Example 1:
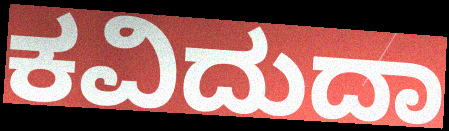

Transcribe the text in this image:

ಕವಿದುದಾ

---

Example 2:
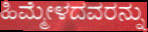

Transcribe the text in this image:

ಹಿಮ್ಮೇಳದವರನ್ನು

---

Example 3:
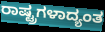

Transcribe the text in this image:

ರಾಷ್ಟ್ರಗಳಾದ್ಯಂತ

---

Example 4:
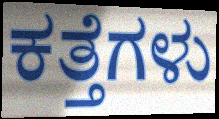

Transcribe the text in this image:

ಕತ್ತೆಗಳು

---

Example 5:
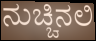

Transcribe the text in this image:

ನುಚ್ಚಿನಲಿ